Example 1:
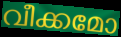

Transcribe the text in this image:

വീക്കമോ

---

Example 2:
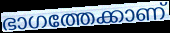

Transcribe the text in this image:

ഭാഗത്തേക്കാണ്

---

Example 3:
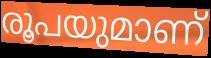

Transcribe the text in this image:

രൂപയുമാണ്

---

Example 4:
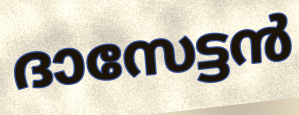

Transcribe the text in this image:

ദാസേട്ടൻ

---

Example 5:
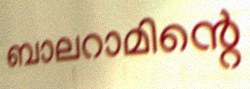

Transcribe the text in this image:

ബാലറാമിന്റെ